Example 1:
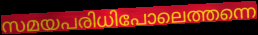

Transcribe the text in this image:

സമയപരിധിപോലെത്തന്നെ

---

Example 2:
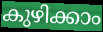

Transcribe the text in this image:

കുഴിക്കാം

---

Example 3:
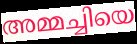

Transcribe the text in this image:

അമ്മച്ചിയെ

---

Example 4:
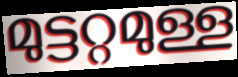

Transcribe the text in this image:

മുട്ടറ്റമുള്ള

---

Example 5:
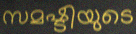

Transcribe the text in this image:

സമഷ്ടിയുടെ